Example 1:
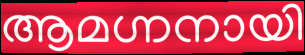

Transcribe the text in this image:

ആമഗ്നനായി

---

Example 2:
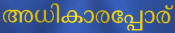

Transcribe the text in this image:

അധികാരപ്പോര്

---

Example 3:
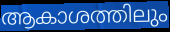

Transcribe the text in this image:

ആകാശത്തിലും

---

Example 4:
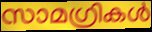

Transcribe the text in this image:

സാമഗ്രികൾ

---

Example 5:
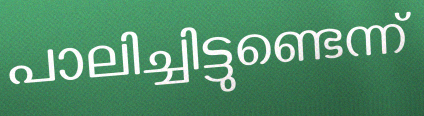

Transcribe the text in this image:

പാലിച്ചിട്ടുണ്ടെന്ന്